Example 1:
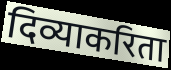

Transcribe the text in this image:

दिव्याकरिता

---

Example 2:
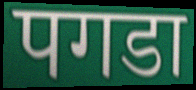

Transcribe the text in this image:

पगडा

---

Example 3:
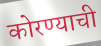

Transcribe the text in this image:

कोरण्याची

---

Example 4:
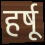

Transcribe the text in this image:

हर्षू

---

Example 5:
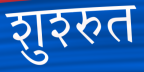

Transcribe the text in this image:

शुश्रुत